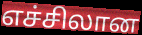
எச்சிலான